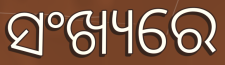
ସଂଖ୍ୟରେ